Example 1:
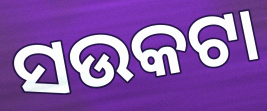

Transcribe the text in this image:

ସଉକଟା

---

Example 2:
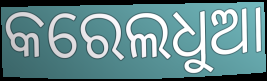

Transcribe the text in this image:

କରେଲଧୁଆ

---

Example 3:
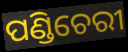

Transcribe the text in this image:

ପଣ୍ଡିଚେରୀ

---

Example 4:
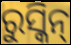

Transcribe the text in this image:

ରୁସ୍କିନ୍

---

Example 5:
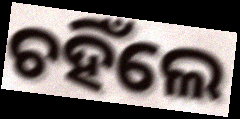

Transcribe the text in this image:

ଚହିଁଲେ